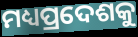
ମଧ୍ୟପ୍ରଦେଶକୁ